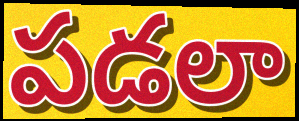
పడలా